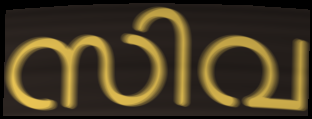
സിവ